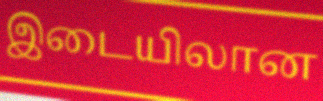
இடையிலான